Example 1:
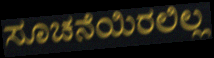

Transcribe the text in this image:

ಸೂಚನೆಯಿರಲಿಲ್ಲ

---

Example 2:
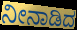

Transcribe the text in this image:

ನೀನಾಡಿದ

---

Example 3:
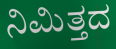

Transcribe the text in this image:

ನಿಮಿತ್ತದ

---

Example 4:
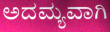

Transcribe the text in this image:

ಅದಮ್ಯವಾಗಿ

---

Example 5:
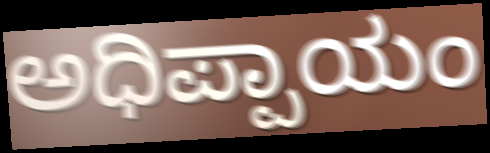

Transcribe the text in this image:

ಅಧಿಪ್ಪಾಯಂ